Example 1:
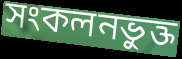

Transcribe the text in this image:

সংকলনভুক্ত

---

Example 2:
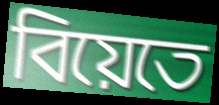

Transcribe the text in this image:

বিয়েতে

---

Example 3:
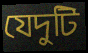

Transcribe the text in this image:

যেদুটি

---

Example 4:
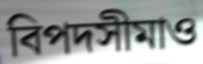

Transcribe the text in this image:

বিপদসীমাও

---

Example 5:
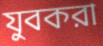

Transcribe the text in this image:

যুবকরা